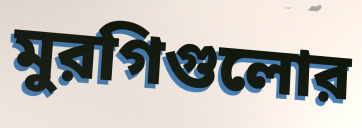
মুরগিগুলোর